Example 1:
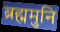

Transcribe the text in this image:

ब्रह्ममुनि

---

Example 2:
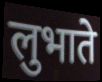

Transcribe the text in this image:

लुभाते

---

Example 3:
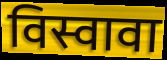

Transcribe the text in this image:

विस्वावा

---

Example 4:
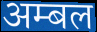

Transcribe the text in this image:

अम्बल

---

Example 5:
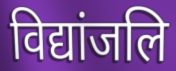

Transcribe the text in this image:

विद्यांजलि